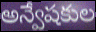
అన్వేషకుల